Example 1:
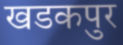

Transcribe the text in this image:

खडकपुर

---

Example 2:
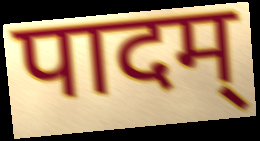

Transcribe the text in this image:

पादम्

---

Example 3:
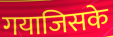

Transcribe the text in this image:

गयाजिसके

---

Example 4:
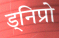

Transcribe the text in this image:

ड्निप्रो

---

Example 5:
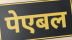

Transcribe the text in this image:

पेएबल